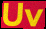
Uv